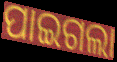
ପାଇଗଲା